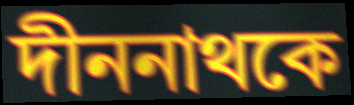
দীননাথকে